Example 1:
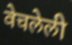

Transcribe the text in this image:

वेचलेली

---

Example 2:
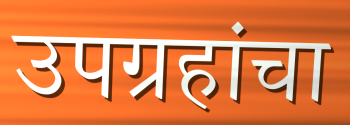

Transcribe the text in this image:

उपग्रहांचा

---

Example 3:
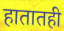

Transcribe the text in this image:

हातातही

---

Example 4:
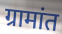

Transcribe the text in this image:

ग्रामांत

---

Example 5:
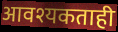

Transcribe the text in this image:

आवश्यकताही